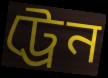
ট্রেন